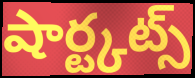
షార్ట్కట్స్